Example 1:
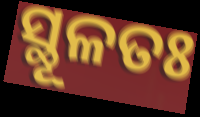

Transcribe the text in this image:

ସ୍ଥୂଳତଃ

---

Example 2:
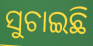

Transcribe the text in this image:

ସୁଚାଇଛି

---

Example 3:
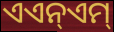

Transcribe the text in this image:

ଏଏନ୍ଏମ୍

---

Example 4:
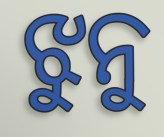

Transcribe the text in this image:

ଝୁନୁ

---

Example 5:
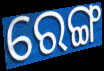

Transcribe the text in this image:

ରେଙ୍ଗ